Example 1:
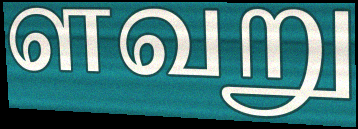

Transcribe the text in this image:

ளவறு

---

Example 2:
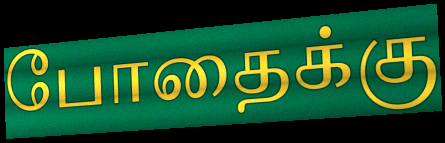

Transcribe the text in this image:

போதைக்கு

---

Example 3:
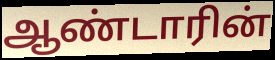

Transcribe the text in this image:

ஆண்டாரின்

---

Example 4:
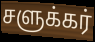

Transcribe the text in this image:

சளுக்கர்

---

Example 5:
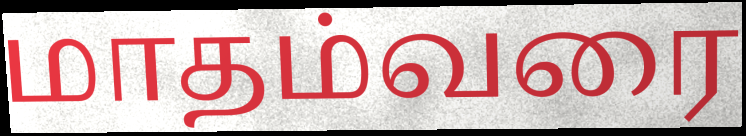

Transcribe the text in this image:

மாதம்வரை